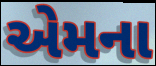
એમના